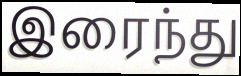
இரைந்து